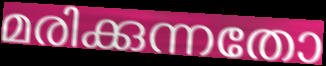
മരിക്കുന്നതോ